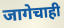
जागेचाही